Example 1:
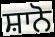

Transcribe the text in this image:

ਸ਼ਾਨੋ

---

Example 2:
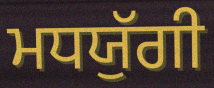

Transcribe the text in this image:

ਮਧਯੁੱਗੀ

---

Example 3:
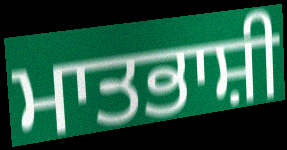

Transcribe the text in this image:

ਮਾਤਭਾਸ਼ੀ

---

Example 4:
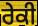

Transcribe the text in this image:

ਰੇਕੀ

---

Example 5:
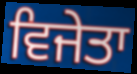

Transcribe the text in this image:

ਵਿਜੇਤਾ